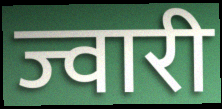
ज्वारी